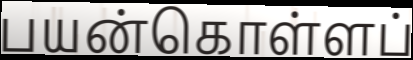
பயன்கொள்ளப்